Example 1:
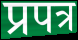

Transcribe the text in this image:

प्रपत्र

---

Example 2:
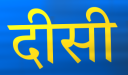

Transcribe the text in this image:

दीसी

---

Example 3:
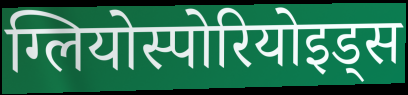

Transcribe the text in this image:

ग्लियोस्पोरियोइड्स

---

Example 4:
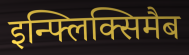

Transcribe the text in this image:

इन्फ्लिक्सिमैब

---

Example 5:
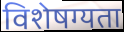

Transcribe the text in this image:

विशेषग्यता